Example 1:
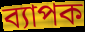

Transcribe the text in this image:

ব্যাপক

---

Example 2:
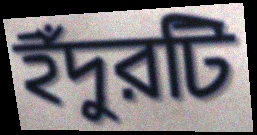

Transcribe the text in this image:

ইঁদুরটি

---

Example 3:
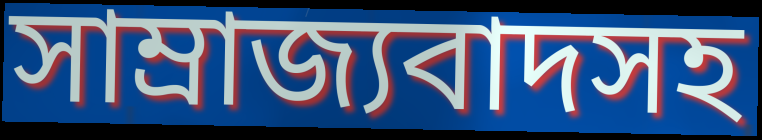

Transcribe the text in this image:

সাম্রাজ্যবাদসহ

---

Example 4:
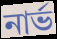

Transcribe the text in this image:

নার্ভ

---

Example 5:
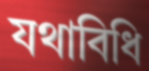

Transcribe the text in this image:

যথাবিধি